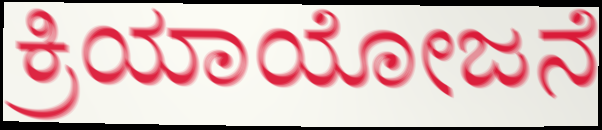
ಕ್ರಿಯಾಯೋಜನೆ